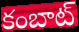
కంబాట్